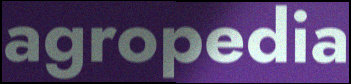
agropedia